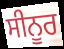
ਸੀਨੂਰ